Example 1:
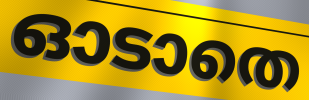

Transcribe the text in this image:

ഓടാതെ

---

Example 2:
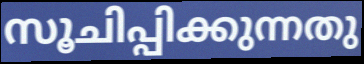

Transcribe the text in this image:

സൂചിപ്പിക്കുന്നതു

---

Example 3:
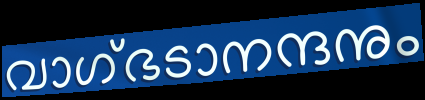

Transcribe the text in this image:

വാഗ്ഭടാനന്ദനും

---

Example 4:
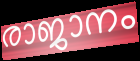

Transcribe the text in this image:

രാജാനം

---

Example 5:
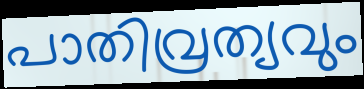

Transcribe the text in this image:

പാതിവ്രത്യവും